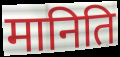
मानिति